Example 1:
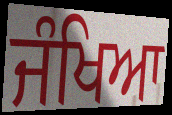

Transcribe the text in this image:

ਜੰਖਿਆ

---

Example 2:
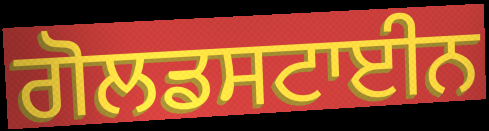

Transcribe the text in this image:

ਗੋਲਡਸਟਾਈਨ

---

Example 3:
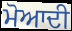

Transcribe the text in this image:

ਮੋਆਦੀ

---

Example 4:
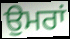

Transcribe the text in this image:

ਉਮਰਾਂ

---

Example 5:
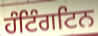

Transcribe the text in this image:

ਹੰਟਿੰਗਟਿਨ